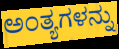
ಅಂತ್ಯಗಳನ್ನು